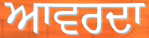
ਆਵਰਦਾ